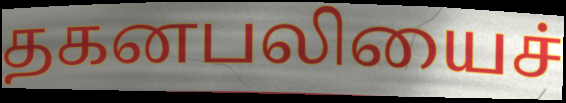
தகனபலியைச்